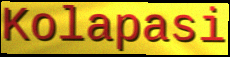
Kolapasi